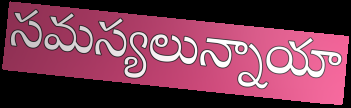
సమస్యలున్నాయా